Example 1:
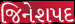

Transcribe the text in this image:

જિનેશપદ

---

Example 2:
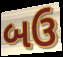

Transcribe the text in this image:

બઉ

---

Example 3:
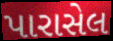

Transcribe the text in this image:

પારાસેલ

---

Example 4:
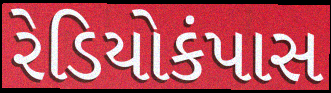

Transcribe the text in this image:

રેડિયોકંપાસ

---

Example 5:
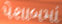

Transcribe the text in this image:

પેશાબમાં